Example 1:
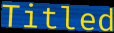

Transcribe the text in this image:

Titled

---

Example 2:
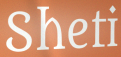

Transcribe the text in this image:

Sheti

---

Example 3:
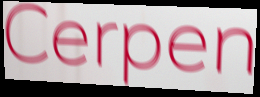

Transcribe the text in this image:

Cerpen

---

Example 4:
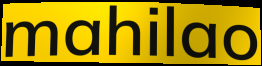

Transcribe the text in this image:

mahilao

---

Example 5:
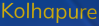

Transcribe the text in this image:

Kolhapure